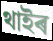
থাইৰ